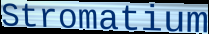
Stromatium